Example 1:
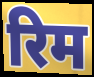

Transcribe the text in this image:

रिम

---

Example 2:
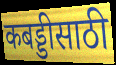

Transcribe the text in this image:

कबड्डीसाठी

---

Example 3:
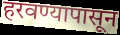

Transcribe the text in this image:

हरवण्यापासून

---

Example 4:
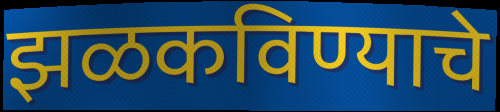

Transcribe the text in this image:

झळकविण्याचे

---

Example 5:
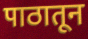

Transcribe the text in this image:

पाठातून